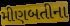
મીણબતીના